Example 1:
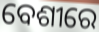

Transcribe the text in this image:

ବେଶୀରେ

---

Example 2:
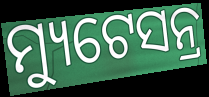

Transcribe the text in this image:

ମ୍ୟୁଟେସନ୍ର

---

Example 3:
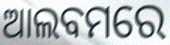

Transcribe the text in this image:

ଆଲବମରେ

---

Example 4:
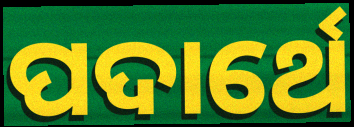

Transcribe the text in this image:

ପଦାର୍ଥେ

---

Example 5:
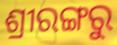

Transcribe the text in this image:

ଶ୍ରୀରଙ୍ଗରୁ